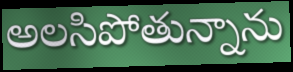
అలసిపోతున్నాను